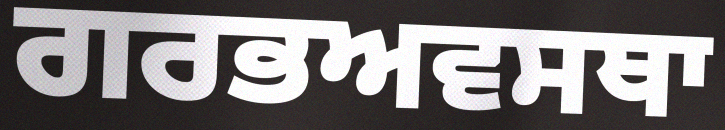
ਗਰਭਅਵਸਥਾ